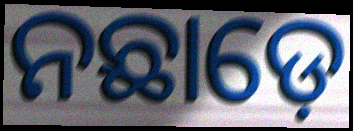
ନଛାଡ଼େ